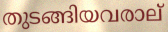
തുടങ്ങിയവരാല്